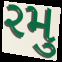
રમુ